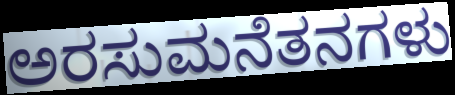
ಅರಸುಮನೆತನಗಳು